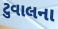
ટુવાલના